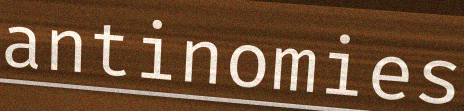
antinomies